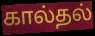
கால்தல்